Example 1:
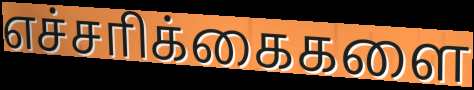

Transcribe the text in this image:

எச்சரிக்கைகளை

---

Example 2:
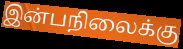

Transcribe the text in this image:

இன்பநிலைக்கு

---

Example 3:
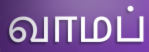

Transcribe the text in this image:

வாமப்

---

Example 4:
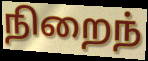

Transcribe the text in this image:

நிறைந்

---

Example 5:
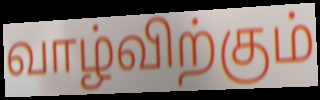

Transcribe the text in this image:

வாழ்விற்கும்